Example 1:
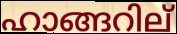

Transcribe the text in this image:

ഹാങ്ങറില്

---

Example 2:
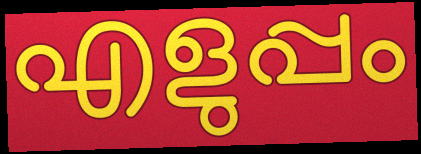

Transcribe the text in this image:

എളുപ്പം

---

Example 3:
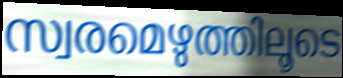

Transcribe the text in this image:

സ്വരമെഴുത്തിലൂടെ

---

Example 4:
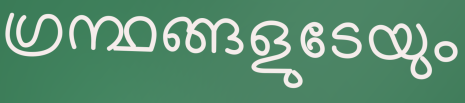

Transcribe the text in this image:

ഗ്രന്ഥങ്ങളുടേയും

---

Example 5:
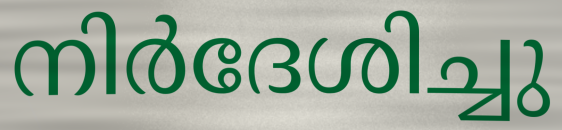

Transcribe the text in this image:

നിർദേശിച്ചു